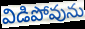
విడిపోవును